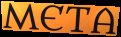
META